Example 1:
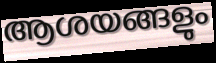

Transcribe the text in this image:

ആശയങ്ങളും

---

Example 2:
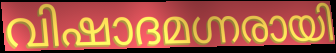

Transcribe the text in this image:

വിഷാദമഗ്നരായി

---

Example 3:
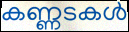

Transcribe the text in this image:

കണ്ണടകൾ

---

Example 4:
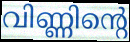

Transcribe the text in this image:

വിണ്ണിന്റെ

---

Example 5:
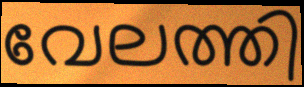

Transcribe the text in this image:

വേലത്തി